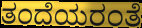
ತಂದೆಯರಂತೆ